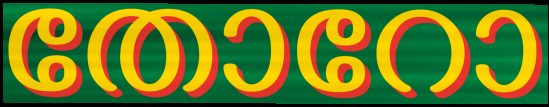
തോറോ